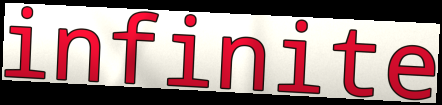
infinite